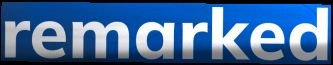
remarked